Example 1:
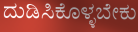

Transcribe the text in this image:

ದುಡಿಸಿಕೊಳ್ಳಬೇಕು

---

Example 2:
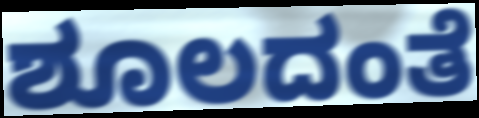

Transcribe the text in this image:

ಶೂಲದಂತೆ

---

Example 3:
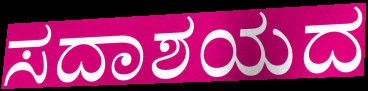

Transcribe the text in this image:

ಸದಾಶಯದ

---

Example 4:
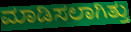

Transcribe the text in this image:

ಮಾಡಿಸಲಾಗಿತ್ತು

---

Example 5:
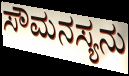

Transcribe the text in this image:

ಸೌಮನಸ್ಯನು